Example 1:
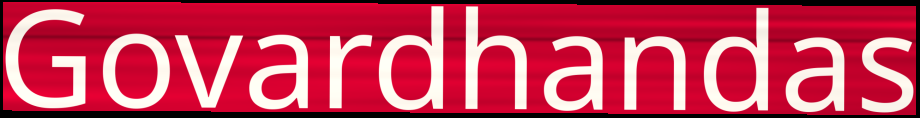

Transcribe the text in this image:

Govardhandas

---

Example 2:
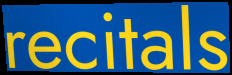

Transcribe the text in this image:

recitals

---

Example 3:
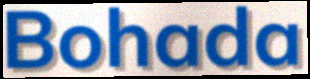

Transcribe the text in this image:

Bohada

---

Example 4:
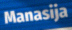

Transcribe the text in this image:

Manasija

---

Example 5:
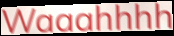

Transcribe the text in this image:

Waaahhhh